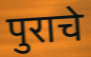
पुराचे